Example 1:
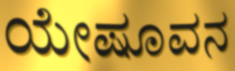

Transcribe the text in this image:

ಯೇಷೂವನ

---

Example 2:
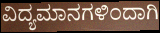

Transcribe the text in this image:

ವಿದ್ಯಮಾನಗಳಿಂದಾಗಿ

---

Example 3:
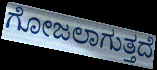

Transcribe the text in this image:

ಗೋಜಲಾಗುತ್ತದೆ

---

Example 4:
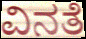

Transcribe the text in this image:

ವಿನತೆ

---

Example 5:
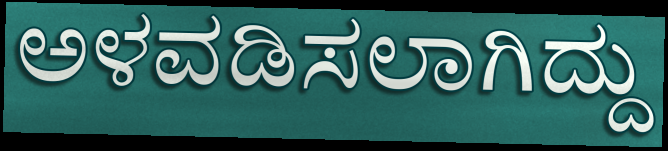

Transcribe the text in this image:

ಅಳವಡಿಸಲಾಗಿದ್ದು